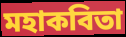
মহাকবিতা